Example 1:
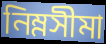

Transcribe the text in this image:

নিম্নসীমা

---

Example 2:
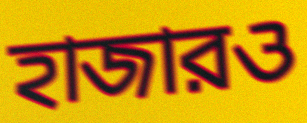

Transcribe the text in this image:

হাজারও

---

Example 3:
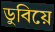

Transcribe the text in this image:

ডুবিয়ে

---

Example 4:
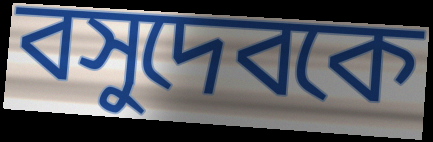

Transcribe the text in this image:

বসুদেবকে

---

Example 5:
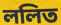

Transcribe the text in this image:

ললিত